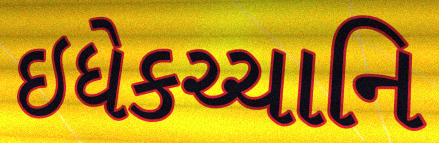
ઇધેકચ્ચાનિ